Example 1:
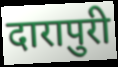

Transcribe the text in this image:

दारापुरी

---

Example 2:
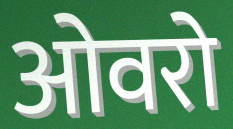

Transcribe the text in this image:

ओवरो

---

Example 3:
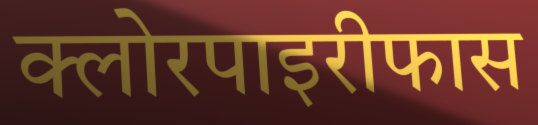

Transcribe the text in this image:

क्लोरपाइरीफास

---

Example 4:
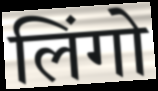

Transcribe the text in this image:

लिंगो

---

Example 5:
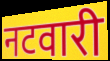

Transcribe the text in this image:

नटवारी